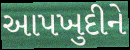
આપખુદીને